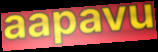
aapavu